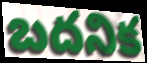
బదనిక